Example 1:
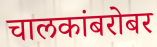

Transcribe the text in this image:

चालकांबरोबर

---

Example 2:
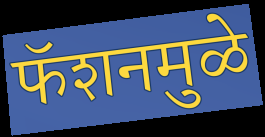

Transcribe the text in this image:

फॅशनमुळे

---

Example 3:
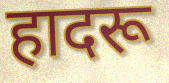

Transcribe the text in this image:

हादरू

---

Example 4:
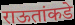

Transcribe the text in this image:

राऊतांकडे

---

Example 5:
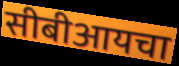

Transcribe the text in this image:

सीबीआयचा